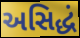
અસિદ્ધં